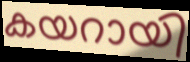
കയറായി